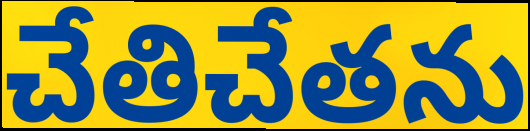
చేతిచేతను